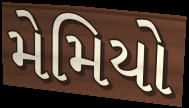
મેમિયો